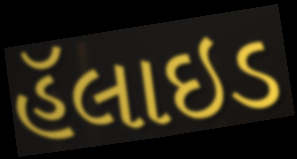
હૅલાઇડ